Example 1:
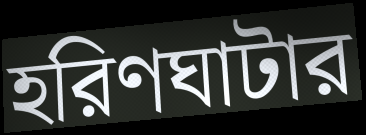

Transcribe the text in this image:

হরিণঘাটার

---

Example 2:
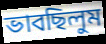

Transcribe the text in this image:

ভাবছিলুম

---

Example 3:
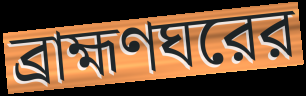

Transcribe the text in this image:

ব্রাহ্মণঘরের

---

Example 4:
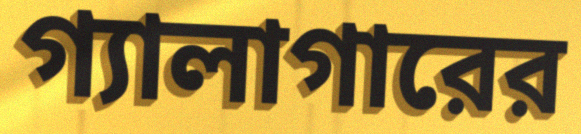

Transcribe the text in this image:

গ্যালাগারের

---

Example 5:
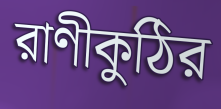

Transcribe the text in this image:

রাণীকুঠির